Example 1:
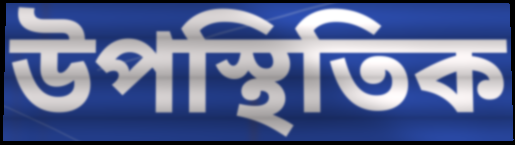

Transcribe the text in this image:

উপস্থিতিক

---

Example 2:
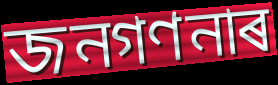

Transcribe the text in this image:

জনগণনাৰ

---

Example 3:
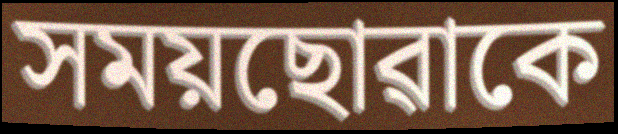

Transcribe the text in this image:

সময়ছোৱাকে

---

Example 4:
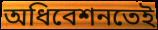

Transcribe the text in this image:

অধিবেশনতেই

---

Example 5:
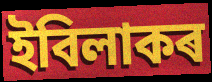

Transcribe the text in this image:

ইবিলাকৰ